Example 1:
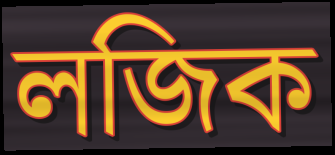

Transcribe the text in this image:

লজিক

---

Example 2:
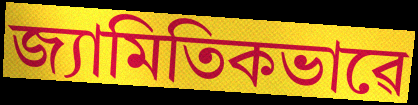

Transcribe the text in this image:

জ্যামিতিকভাৱে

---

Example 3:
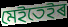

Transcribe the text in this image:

মেইতেইৰ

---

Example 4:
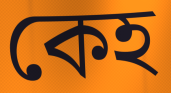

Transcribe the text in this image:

কেহ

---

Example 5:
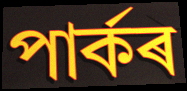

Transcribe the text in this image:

পাৰ্কৰ